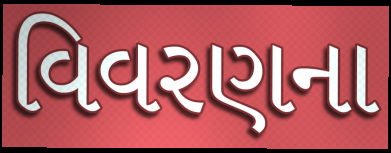
વિવરણના